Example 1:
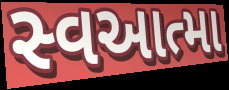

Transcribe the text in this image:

સ્વઆત્મા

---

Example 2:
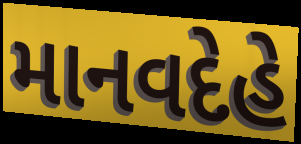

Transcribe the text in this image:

માનવદેહે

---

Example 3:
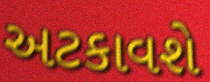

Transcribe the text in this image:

અટકાવશે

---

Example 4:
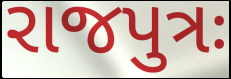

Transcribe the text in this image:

રાજપુત્રઃ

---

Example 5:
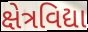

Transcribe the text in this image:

ક્ષેત્રવિદ્યા